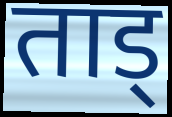
ताड्